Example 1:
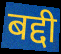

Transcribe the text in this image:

बद्दी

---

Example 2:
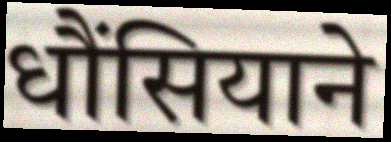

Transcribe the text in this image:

धौंसियाने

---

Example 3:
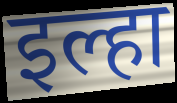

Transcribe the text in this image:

इल्हा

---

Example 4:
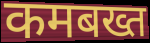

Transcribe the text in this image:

कमबख्त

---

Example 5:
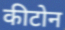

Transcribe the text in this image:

कीटोन